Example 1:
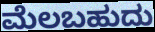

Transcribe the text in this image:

ಮೆಲಬಹುದು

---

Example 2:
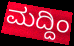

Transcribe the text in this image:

ಮದ್ದಿಂ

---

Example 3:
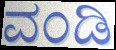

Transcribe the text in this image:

ವಂಡಿ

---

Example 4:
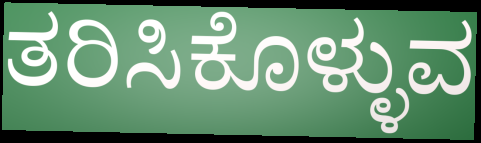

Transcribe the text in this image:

ತರಿಸಿಕೊಳ್ಳುವ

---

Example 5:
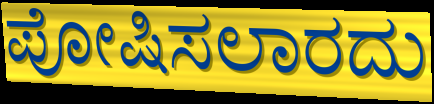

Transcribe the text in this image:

ಪೋಷಿಸಲಾರದು